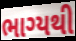
ભાગ્યથી